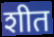
शीत